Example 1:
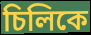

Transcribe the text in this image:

চিলিকে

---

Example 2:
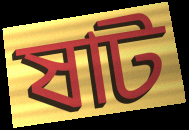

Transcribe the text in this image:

ষাট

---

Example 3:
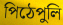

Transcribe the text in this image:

পিঠেপুলি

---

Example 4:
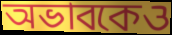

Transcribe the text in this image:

অভাবকেও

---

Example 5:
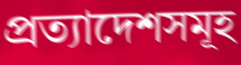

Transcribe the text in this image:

প্রত্যাদেশসমূহ